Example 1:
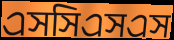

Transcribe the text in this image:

এসসিএসএস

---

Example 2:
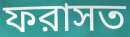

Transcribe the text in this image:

ফরাসত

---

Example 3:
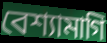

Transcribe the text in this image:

বেশ্যামাগি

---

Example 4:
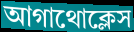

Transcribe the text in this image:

আগাথোক্লেস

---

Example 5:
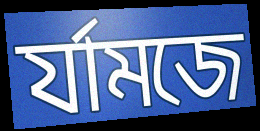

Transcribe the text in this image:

র্যামজে